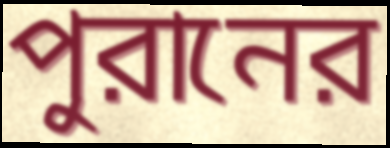
পুরানের